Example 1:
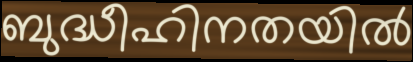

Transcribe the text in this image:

ബുദ്ധീഹിനതയിൽ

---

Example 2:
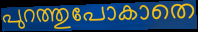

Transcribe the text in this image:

പുറത്തുപോകാതെ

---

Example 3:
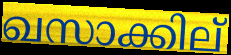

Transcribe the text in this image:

ഖസാക്കില്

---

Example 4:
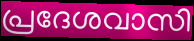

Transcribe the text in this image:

പ്രദേശവാസി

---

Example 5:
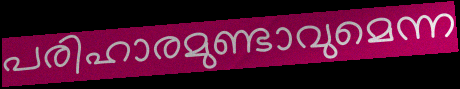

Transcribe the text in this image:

പരിഹാരമുണ്ടാവുമെന്ന